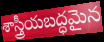
శాస్త్రీయబద్ధమైన